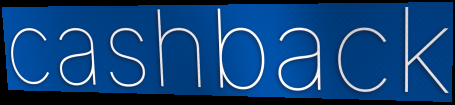
cashback